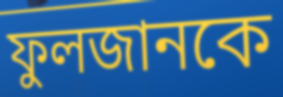
ফুলজানকে